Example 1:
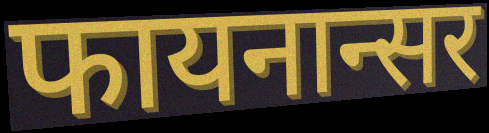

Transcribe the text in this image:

फायनान्सर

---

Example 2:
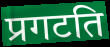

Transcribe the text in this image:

प्रगटति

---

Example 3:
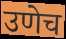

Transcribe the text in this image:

उणेच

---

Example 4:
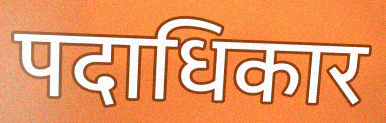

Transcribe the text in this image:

पदाधिकार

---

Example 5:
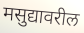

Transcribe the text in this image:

मसुद्यावरील